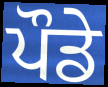
ਪੌਡੇ